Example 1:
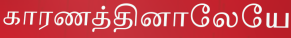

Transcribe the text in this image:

காரணத்தினாலேயே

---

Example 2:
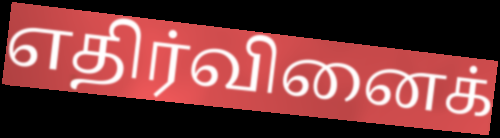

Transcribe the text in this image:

எதிர்வினைக்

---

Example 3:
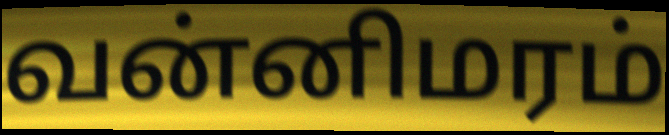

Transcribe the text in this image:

வன்னிமரம்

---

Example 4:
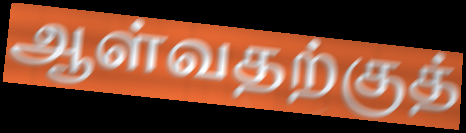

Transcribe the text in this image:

ஆள்வதற்குத்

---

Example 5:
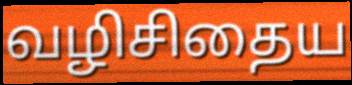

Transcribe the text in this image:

வழிசிதைய